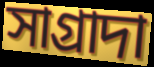
সাগ্রাদা